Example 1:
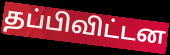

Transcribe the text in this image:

தப்பிவிட்டன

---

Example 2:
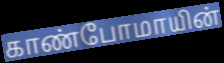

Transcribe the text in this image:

காண்போமாயின்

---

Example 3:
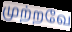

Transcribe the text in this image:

முற்றவே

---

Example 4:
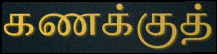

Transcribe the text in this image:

கணக்குத்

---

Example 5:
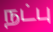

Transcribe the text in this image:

நட்பு